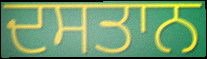
ਦਸਤਾਨ